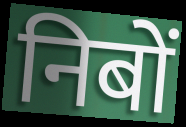
निबों